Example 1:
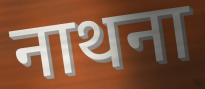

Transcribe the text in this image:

नाथना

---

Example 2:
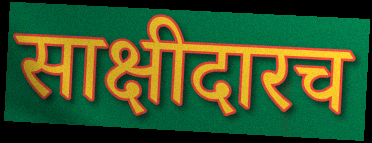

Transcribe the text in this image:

साक्षीदारच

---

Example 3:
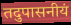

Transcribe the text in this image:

तदुपासनीयं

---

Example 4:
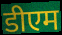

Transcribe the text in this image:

डीएम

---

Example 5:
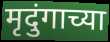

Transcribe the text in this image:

मृदुंगाच्या